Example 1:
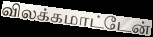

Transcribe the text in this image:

விலக்கமாட்டேன்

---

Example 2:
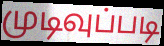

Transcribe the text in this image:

முடிவுப்படி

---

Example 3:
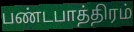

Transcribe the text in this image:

பண்டபாத்திரம்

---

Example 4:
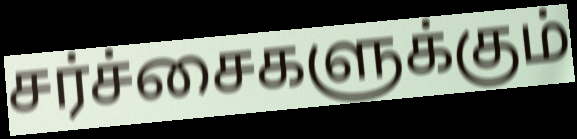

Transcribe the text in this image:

சர்ச்சைகளுக்கும்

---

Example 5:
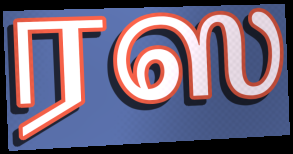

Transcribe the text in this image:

ரஸ